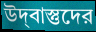
উদ্‌বাস্তুদের